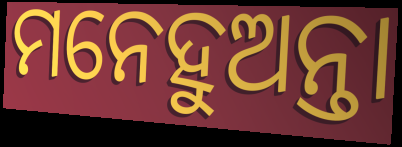
ମନେହୁଅନ୍ତା